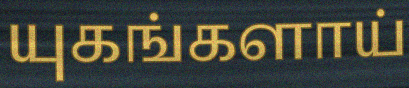
யுகங்களாய்